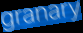
granary